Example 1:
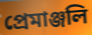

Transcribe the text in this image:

প্রেমাঞ্জলি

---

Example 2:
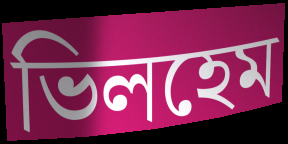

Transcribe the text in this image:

ভিলহেম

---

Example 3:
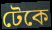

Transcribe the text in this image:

টেকে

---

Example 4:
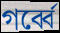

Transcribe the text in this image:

গর্ব্বে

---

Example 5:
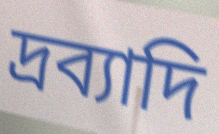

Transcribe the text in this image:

দ্রব্যাদি